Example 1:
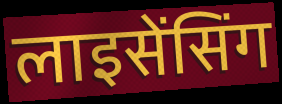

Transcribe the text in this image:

लाइसेंसिंग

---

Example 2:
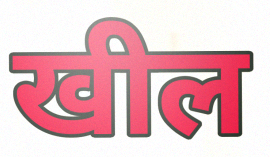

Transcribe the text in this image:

खील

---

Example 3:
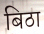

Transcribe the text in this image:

बिठा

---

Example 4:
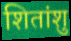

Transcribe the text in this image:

शितांशु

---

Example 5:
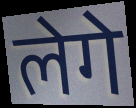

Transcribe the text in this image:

लेगे